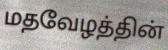
மதவேழத்தின்